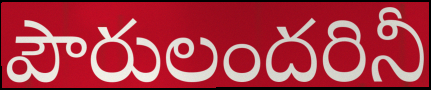
పౌరులందరినీ